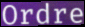
Ordre